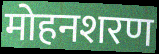
मोहनशरण